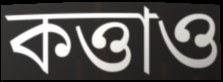
কত্তাও